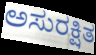
ಅಸುರಕ್ಷಿತ